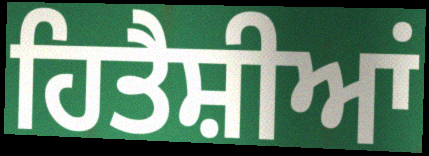
ਹਿਤੈਸ਼ੀਆਂ